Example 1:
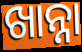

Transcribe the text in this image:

ଖାନ୍ନା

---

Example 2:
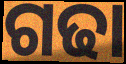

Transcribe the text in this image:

ଗଢା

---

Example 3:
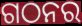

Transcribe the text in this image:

ଗଠନର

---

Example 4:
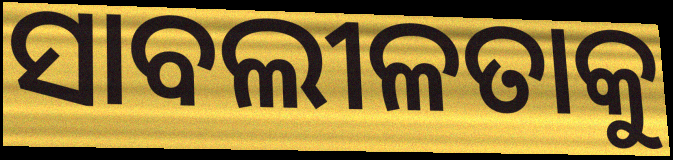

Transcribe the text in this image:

ସାବଲୀଳତାକୁ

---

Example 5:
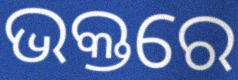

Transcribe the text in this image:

ଭକ୍ତରେ